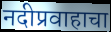
नदीप्रवाहाचा